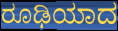
ರೂಢಿಯಾದ